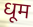
धूम